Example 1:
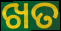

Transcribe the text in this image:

ଖତ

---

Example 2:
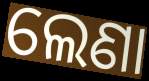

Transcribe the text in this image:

ଲେଣା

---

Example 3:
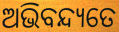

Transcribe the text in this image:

ଅଭିବନ୍ଦ୍ୟତେ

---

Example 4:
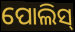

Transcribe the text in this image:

ପୋଲିସ୍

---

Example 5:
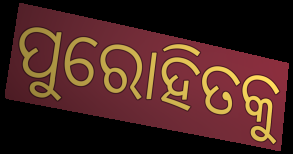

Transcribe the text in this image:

ପୁରୋହିତକୁ